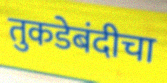
तुकडेबंदीचा